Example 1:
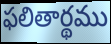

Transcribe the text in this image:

ఫలితార్థము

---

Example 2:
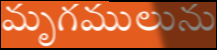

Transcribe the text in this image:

మృగములును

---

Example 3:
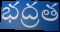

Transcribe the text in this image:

భద్రత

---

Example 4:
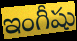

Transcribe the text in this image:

ఇంగీషు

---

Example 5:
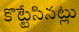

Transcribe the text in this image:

కొట్టేసినట్లు